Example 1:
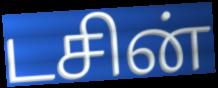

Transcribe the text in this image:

டசின்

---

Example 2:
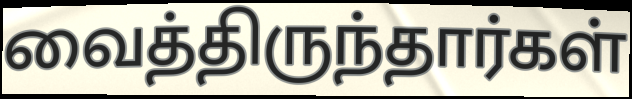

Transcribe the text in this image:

வைத்திருந்தார்கள்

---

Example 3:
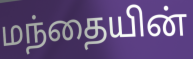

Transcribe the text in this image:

மந்தையின்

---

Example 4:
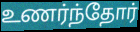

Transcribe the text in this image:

உணர்ந்தோர்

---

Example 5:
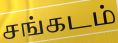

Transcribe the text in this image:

சங்கடம்